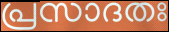
പ്രസാദതഃ